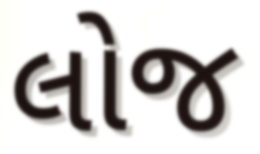
લોજ